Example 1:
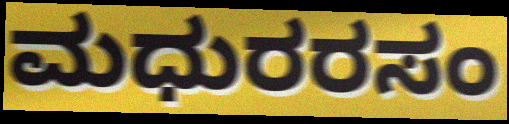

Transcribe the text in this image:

ಮಧುರರಸಂ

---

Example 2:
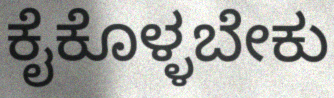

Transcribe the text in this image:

ಕೈಕೊಳ್ಳಬೇಕು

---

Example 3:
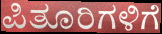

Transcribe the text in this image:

ಪಿತೂರಿಗಳಿಗೆ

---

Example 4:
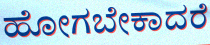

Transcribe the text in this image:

ಹೋಗಬೇಕಾದರೆ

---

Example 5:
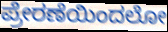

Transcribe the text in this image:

ಪ್ರೇರಣೆಯಿಂದಲೋ